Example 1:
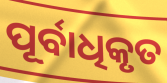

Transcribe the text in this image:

ପୂର୍ବାଧିକୃତ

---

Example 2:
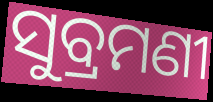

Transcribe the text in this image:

ସୁବ୍ରମଣୀ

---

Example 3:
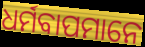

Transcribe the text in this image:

ଧର୍ମବାପମାନେ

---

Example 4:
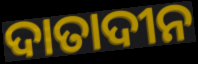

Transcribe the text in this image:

ଦାତାଦୀନ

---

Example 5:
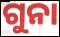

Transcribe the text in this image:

ଗୁନା